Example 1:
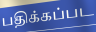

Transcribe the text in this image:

பதிக்கப்பட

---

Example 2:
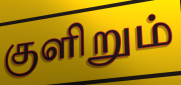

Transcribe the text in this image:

குளிறும்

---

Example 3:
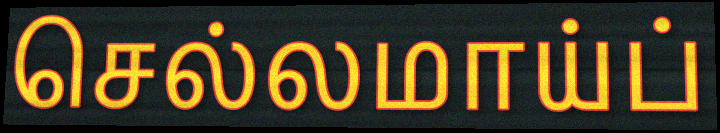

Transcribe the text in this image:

செல்லமாய்ப்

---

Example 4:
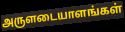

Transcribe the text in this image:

அருளடையாளங்கள்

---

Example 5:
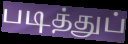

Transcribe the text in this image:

படித்துப்